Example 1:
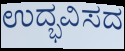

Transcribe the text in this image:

ಉದ್ಭವಿಸದ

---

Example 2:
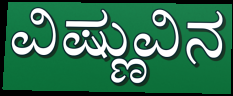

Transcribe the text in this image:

ವಿಷ್ಣುವಿನ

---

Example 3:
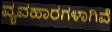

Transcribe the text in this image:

ವ್ಯವಹಾರಗಳಾಗಿವೆ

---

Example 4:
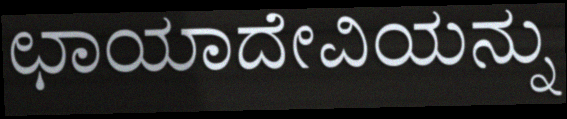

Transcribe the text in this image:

ಛಾಯಾದೇವಿಯನ್ನು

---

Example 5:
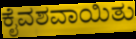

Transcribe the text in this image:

ಕೈವಶವಾಯಿತು